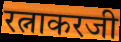
रत्नाकरजी